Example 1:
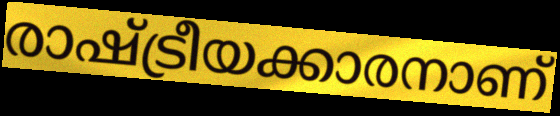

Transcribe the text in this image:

രാഷ്ട്രീയക്കാരനാണ്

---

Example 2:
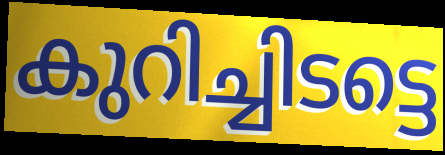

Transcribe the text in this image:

കുറിച്ചിടട്ടെ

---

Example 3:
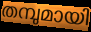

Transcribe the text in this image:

തമ്പുമായി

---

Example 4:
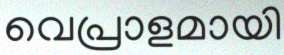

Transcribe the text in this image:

വെപ്രാളമായി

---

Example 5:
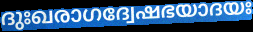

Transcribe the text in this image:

ദുഃഖരാഗദ്വേഷഭയാദയഃ